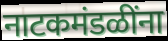
नाटकमंडळींना